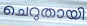
ചെറുതായി